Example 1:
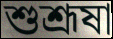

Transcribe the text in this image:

শুশ্রূষা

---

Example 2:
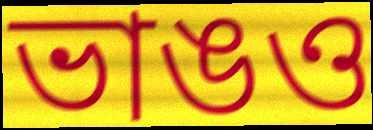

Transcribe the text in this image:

ভাঙও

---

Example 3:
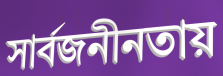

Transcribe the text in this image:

সার্বজনীনতায়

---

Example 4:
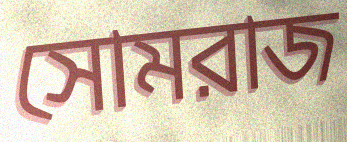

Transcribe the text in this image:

সোমরাজ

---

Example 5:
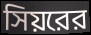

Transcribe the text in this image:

সিয়রের